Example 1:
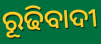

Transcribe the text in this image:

ରୂଢିବାଦୀ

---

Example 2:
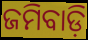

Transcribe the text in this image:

ଜମିବାଡ଼ି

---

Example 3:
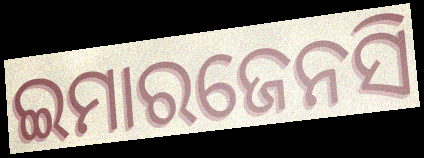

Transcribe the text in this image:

ଇମାରଜେନସି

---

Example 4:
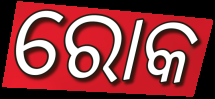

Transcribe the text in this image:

ରୋକ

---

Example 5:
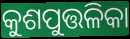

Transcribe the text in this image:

କୁଶପୁତ୍ତଳିକା